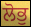
ਲੋਭੁ